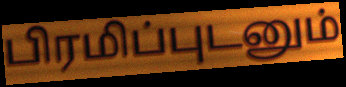
பிரமிப்புடனும்